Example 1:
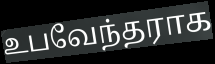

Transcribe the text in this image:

உபவேந்தராக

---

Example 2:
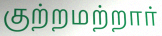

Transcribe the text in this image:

குற்றமற்றார்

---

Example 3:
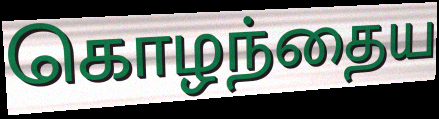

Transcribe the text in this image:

கொழந்தைய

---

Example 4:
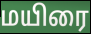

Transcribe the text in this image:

மயிரை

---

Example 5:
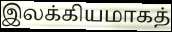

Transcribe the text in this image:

இலக்கியமாகத்